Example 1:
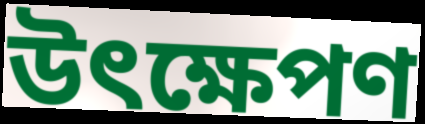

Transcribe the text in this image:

উৎক্ষেপণ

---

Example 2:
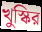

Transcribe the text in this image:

খুস্কির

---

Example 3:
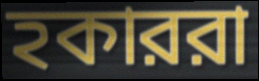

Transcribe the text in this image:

হকাররা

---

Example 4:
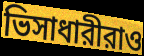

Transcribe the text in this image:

ভিসাধারীরাও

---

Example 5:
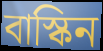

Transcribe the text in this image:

বাস্কিন